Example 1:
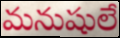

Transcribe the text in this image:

మనుషులే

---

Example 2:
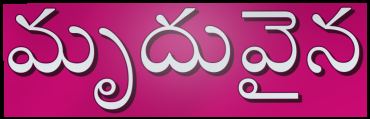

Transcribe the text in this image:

మృదువైన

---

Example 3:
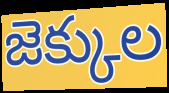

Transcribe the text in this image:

జెక్కుల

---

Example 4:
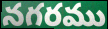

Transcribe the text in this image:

నగరము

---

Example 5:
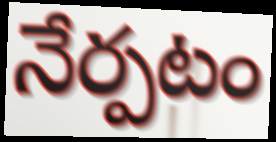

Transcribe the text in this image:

నేర్పటం